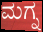
ಮಗ್ನ